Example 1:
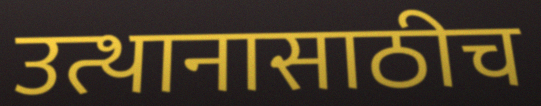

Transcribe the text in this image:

उत्थानासाठीच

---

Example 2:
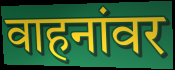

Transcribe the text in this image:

वाहनांवर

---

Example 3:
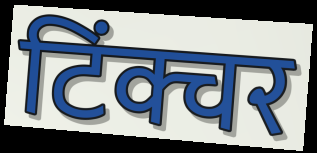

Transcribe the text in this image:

टिंक्चर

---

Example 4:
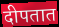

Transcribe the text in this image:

दीपतात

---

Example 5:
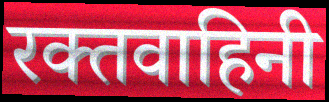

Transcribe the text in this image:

रक्तवाहिनी